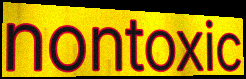
nontoxic